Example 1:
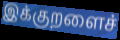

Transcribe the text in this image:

இக்குறளைச்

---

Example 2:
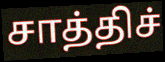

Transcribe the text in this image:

சாத்திச்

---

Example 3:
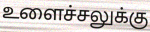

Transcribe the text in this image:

உளைச்சலுக்கு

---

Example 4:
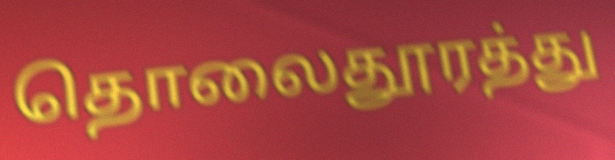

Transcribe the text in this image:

தொலைதூரத்து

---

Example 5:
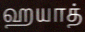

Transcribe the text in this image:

ஹயாத்